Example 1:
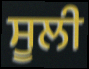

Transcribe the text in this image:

ਸੂਲੀ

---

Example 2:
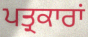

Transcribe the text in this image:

ਪਤ੍ਰਕਾਰਾਂ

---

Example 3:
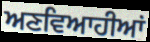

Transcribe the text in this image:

ਅਣਵਿਆਹੀਆਂ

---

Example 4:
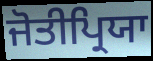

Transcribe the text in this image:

ਜੋਤੀਪ੍ਰਿਯਾ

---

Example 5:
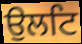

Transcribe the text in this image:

ਉਲਟਿ